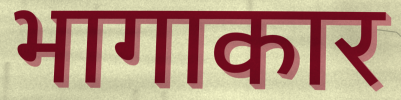
भागाकार